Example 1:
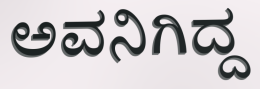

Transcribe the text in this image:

ಅವನಿಗಿದ್ದ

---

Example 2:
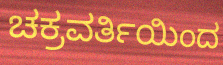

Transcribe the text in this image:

ಚಕ್ರವರ್ತಿಯಿಂದ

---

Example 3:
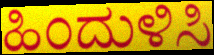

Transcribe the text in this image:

ಹಿಂದುಳಿಸಿ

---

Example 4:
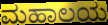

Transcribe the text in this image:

ಮಹಾಲಯ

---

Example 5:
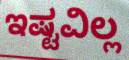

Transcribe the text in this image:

ಇಷ್ಟವಿಲ್ಲ